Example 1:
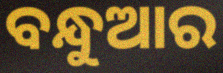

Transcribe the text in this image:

ବନ୍ଧୁଆର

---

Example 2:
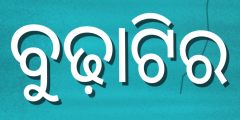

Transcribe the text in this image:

ବୁଢ଼ାଟିର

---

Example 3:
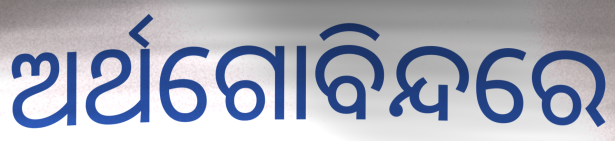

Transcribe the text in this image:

ଅର୍ଥଗୋବିନ୍ଦରେ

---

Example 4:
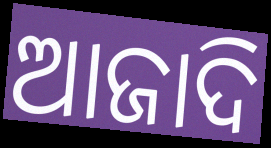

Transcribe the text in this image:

ଆଜାଦି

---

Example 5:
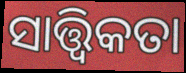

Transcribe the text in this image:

ସାତ୍ତ୍ଵିକତା